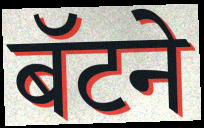
बॅटने